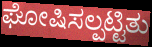
ಘೋಷಿಸಲ್ಪಟ್ಟಿತು